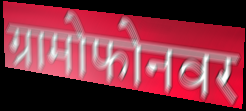
ग्रामोफोनवर